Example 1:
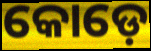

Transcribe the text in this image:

କୋଡ଼େ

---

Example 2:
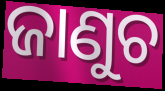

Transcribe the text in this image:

ଜାଣୁଚ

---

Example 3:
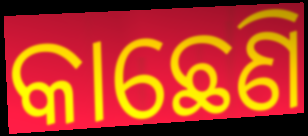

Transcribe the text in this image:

କାଛେଣି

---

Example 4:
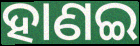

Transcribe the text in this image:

ହାଣଇ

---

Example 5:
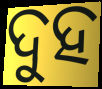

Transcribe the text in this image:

ଦୁହ